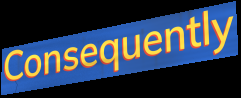
Consequently